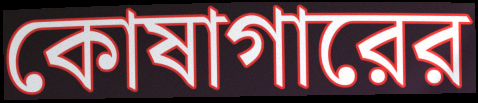
কোষাগারের